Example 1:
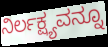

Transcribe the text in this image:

ನಿರ್ಲಕ್ಷ್ಯವನ್ನೂ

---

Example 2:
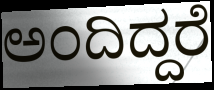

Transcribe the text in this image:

ಅಂದಿದ್ದರೆ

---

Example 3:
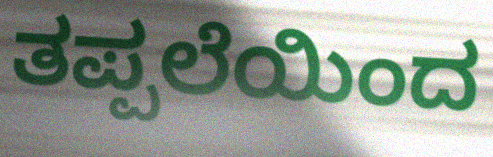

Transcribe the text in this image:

ತಪ್ಪಲೆಯಿಂದ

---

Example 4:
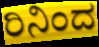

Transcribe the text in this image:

ರಿನಿಂದ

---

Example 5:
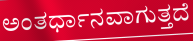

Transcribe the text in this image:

ಅಂತರ್ಧಾನವಾಗುತ್ತದೆ